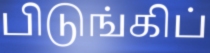
பிடுங்கிப்